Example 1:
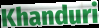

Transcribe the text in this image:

Khanduri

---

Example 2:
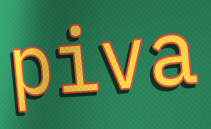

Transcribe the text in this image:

piva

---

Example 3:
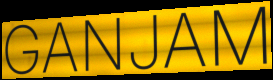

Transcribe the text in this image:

GANJAM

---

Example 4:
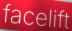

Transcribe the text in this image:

facelift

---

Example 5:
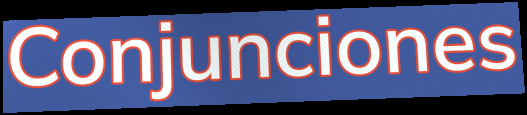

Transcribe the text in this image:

Conjunciones